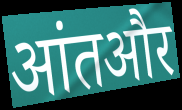
आंतऔर